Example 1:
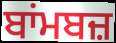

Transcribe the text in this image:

ਬਾਂਮਬਜ਼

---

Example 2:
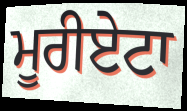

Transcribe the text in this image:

ਮੂਰੀਏਟਾ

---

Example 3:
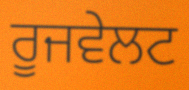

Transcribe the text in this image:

ਰੂਜਵੇਲਟ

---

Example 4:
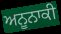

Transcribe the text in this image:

ਅਨੂਨਾਕੀ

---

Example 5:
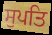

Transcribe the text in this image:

ਸੁਪਤਿ